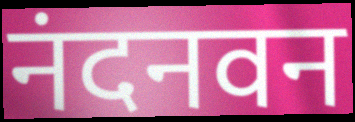
नंदनवन